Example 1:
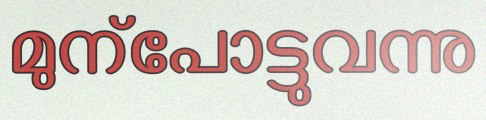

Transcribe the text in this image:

മുന്പോട്ടുവന്നു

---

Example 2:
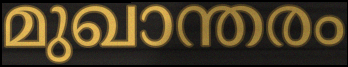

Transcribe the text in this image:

മുഖാന്തരം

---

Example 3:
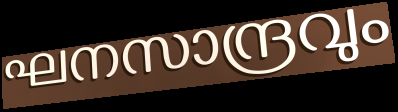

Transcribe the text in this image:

ഘനസാന്ദ്രവും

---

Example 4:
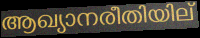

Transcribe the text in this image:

ആഖ്യാനരീതിയില്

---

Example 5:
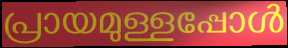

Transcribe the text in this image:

പ്രായമുള്ളപ്പോൾ